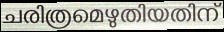
ചരിത്രമെഴുതിയതിന്